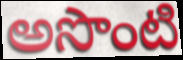
అసొంటి